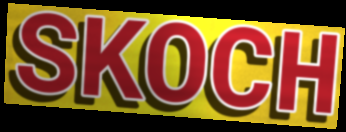
SKOCH